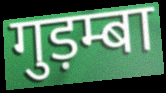
गुड़म्बा